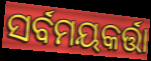
ସର୍ବମୟକର୍ତ୍ତା